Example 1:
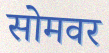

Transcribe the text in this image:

सोमवर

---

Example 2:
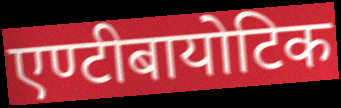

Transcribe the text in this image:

एण्टीबायोटिक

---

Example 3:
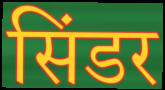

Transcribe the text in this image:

सिंडर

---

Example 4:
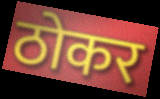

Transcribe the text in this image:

ठोकर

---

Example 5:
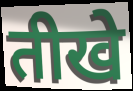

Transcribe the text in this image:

तीखे